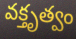
వక్తృత్వం